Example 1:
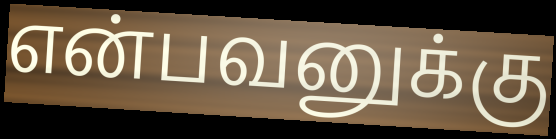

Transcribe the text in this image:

என்பவனுக்கு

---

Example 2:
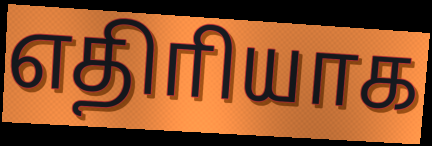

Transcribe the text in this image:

எதிரியாக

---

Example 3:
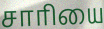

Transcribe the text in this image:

சாரியை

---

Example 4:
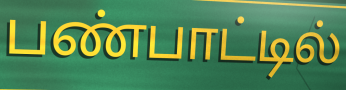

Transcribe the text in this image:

பண்பாட்டில்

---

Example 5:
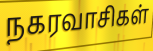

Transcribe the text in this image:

நகரவாசிகள்